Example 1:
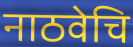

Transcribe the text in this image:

नाठवेचि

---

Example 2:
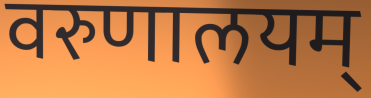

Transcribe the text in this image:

वरुणालयम्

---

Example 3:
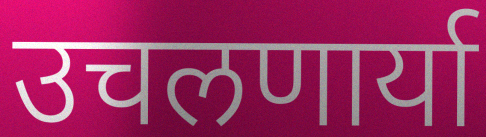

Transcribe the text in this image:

उचलणार्या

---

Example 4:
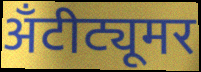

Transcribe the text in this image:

अँटीट्यूमर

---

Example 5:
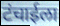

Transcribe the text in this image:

टंचाईला